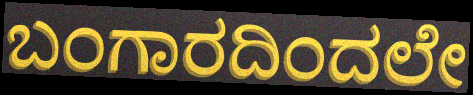
ಬಂಗಾರದಿಂದಲೇ